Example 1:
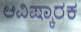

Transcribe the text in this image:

ಆವಿಷ್ಕಾರಕ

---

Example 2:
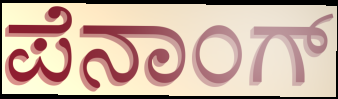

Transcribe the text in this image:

ಪೆನಾಂಗ್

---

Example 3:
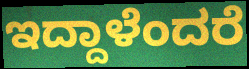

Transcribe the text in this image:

ಇದ್ದಾಳೆಂದರೆ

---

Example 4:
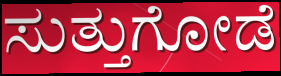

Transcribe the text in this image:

ಸುತ್ತುಗೋಡೆ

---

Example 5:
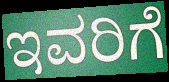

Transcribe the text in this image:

ಇವರಿಗೆ